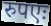
रुपएः